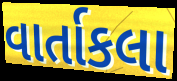
વાર્તાકલા